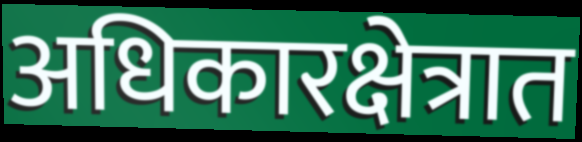
अधिकारक्षेत्रात